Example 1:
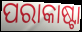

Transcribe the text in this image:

ପରାକାଷ୍ଟା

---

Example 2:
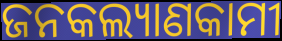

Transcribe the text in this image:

ଜନକଲ୍ୟାଣକାମୀ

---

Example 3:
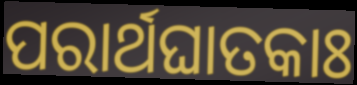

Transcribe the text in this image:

ପରାର୍ଥଘାତକାଃ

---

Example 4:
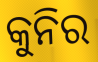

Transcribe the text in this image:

କୁନିର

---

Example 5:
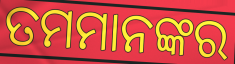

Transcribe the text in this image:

ତମମାନଙ୍କର